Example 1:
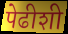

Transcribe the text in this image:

पेढीशी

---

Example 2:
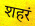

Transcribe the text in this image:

शहरं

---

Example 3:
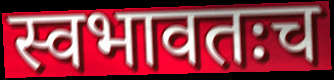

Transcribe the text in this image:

स्वभावतःच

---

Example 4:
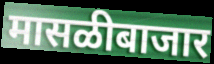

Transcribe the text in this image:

मासळीबाजार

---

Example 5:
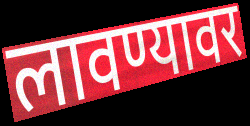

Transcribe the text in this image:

लावण्यावर